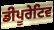
ਡੀਪੂਰੇਟਿਵ